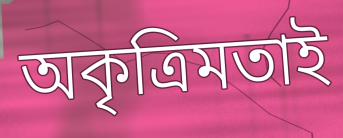
অকৃত্রিমতাই